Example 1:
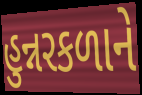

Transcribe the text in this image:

હુન્નરકળાને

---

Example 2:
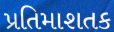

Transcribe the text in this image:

પ્રતિમાશતક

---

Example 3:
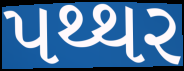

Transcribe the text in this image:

પથ્થર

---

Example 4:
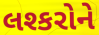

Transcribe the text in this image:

લશ્કરોને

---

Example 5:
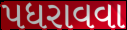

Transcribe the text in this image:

પધરાવવા